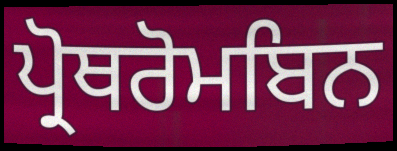
ਪ੍ਰੋਥਰੋਮਬਿਨ